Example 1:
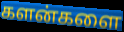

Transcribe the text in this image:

களன்களை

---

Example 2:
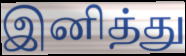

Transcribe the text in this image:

இனித்து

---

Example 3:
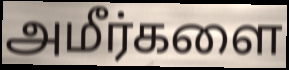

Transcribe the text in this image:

அமீர்களை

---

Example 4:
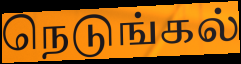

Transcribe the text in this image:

நெடுங்கல்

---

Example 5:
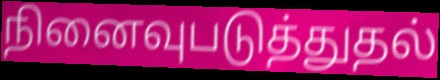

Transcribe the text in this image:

நினைவுபடுத்துதல்